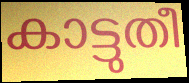
കാട്ടുതീ